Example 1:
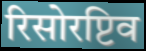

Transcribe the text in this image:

रिसोरप्टिव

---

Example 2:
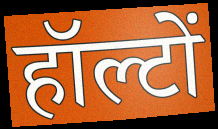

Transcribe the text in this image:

हॉल्टों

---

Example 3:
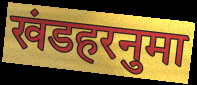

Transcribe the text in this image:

खंडहरनुमा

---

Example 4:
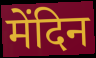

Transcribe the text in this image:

मेंदिन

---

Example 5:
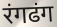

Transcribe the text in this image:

रंगढंग